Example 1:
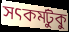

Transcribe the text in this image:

সৎকর্মটুকু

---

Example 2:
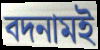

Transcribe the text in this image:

বদনামই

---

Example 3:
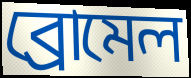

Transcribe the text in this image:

ব্রোমেল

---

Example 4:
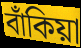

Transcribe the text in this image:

বাঁকিয়া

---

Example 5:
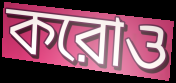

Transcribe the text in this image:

করোও